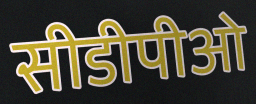
सीडीपीओ